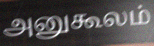
அனுகூலம்